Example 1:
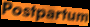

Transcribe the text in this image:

Postpartum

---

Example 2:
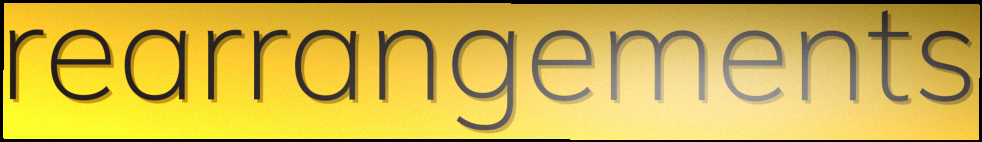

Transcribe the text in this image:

rearrangements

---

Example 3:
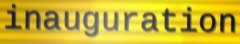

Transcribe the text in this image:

inauguration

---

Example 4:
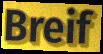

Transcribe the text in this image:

Breif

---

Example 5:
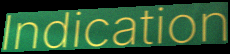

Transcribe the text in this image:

Indication